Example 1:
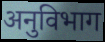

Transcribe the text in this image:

अनुविभाग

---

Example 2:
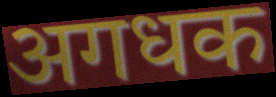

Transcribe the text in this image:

अगधक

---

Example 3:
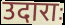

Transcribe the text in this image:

उदाराः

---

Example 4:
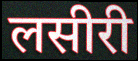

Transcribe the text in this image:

लसीरी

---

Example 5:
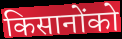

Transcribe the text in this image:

किसानोंको